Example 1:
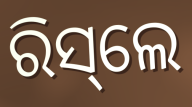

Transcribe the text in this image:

ରିସ୍‌ଲେ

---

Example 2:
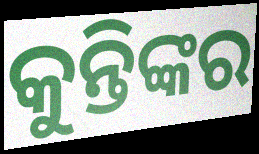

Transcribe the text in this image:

କୁନ୍ତିଙ୍କର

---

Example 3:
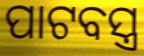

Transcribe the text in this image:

ପାଟବସ୍ତ୍ର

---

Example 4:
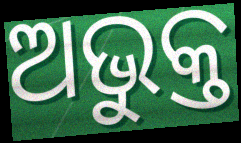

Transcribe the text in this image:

ଅଭୁକ୍ତ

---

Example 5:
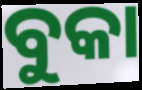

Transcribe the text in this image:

ବୁକା